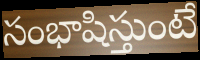
సంభాషిస్తుంటే